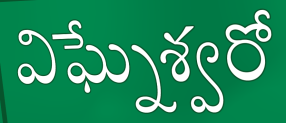
విఘ్నేశ్వరో